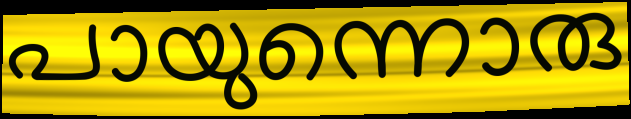
പായുന്നൊരു